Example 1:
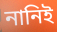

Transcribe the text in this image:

নানিই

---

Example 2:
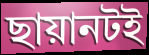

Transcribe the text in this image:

ছায়ানটই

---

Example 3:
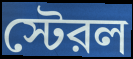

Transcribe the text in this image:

স্টেরল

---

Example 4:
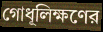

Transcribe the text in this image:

গোধূলিক্ষণের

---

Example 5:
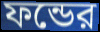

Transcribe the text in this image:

ফন্ডের